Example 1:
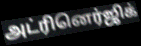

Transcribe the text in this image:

அட்ரினெர்ஜிக்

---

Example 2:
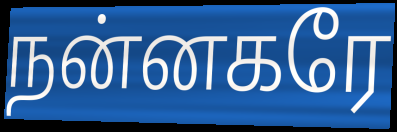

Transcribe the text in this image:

நன்னகரே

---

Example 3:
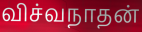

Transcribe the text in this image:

விச்வநாதன்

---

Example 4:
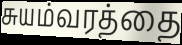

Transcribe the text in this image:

சுயம்வரத்தை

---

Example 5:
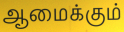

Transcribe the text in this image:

ஆமைக்கும்